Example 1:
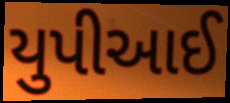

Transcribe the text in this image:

યુપીઆઈ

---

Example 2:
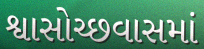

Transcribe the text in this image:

શ્વાસોચ્છવાસમાં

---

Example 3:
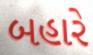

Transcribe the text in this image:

બહારે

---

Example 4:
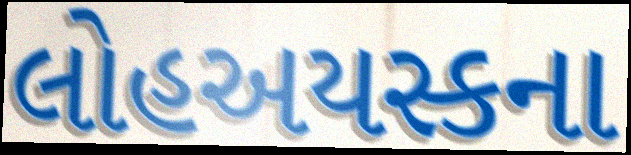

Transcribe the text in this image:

લોહઅયસ્કના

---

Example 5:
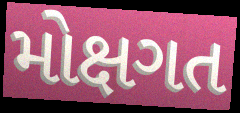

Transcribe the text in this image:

મોક્ષગત